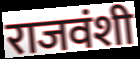
राजवंशी